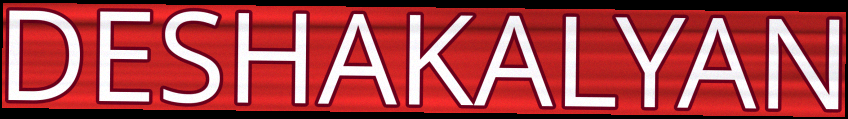
DESHAKALYAN